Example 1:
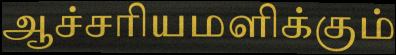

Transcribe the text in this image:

ஆச்சரியமளிக்கும்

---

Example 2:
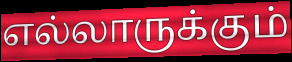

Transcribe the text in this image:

எல்லாருக்கும்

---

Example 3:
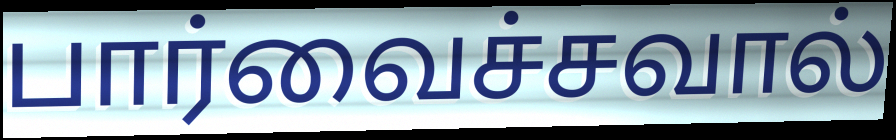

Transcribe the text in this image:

பார்வைச்சவால்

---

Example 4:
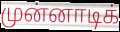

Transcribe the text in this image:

முன்னாடிக்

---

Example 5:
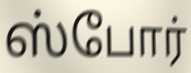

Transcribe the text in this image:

ஸ்போர்